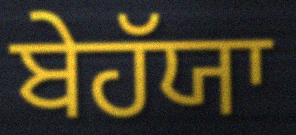
ਬੇਹੱਯਾ